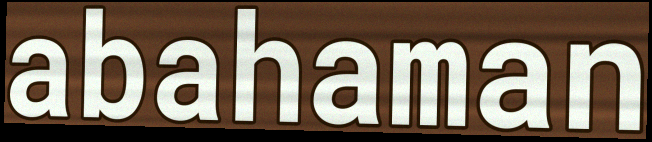
abahaman